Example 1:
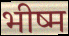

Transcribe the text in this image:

भीष्म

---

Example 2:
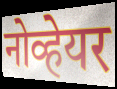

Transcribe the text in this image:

नोव्हेयर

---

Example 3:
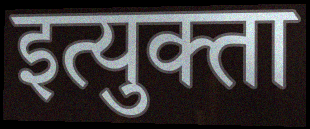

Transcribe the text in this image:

इत्युक्ता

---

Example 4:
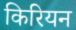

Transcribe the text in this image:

किरियन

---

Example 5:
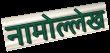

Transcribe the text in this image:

नामोल्लेख